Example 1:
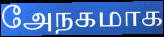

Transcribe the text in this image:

அேநகமாக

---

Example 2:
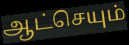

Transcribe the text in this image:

ஆட்செயும்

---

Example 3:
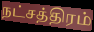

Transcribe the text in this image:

நட்சத்திரம்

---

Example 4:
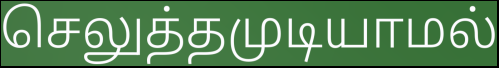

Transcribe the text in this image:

செலுத்தமுடியாமல்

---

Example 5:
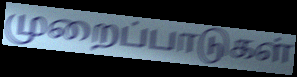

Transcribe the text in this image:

முறைப்பாடுகள்